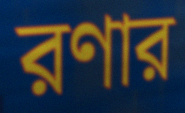
রণার